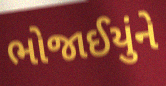
ભોજાઈયુંને